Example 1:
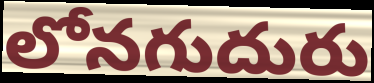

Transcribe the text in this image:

లోనగుదురు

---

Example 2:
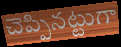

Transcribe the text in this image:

చెప్పినట్టుగా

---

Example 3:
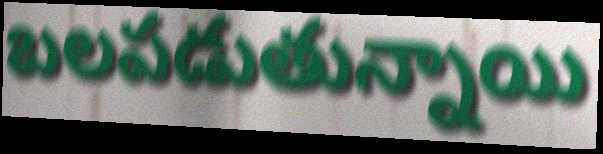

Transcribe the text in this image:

బలపడుతున్నాయి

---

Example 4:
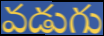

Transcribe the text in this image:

వడుగు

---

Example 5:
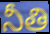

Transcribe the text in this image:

నీతి